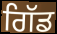
ਗਿੱਡ